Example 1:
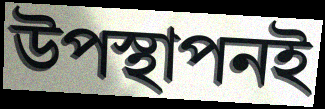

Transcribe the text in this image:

উপস্থাপনই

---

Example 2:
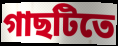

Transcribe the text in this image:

গাছটিতে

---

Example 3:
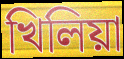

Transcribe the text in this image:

খিলিয়া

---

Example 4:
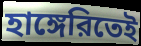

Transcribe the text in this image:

হাঙ্গেরিতেই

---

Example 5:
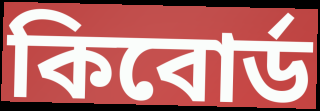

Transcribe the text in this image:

কিবোর্ড